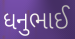
ધનુભાઈ